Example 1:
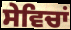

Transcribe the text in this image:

ਸੇਵਿਚਾਂ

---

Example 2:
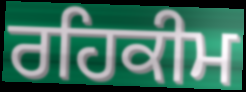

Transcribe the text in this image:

ਰਹਿਕੀਮ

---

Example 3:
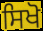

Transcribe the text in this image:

ਸਿਖੋ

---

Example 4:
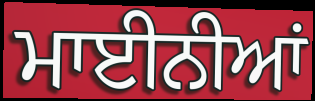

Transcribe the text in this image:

ਮਾਈਨੀਆਂ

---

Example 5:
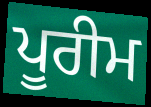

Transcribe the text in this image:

ਪੂਰੀਮ